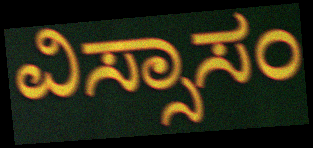
ವಿಸ್ಸಾಸಂ